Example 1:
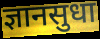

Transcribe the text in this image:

ज्ञानसुधा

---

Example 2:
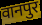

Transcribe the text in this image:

वानपुर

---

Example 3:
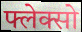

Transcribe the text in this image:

फ्लेक्सो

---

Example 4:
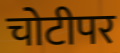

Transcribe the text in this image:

चोटीपर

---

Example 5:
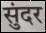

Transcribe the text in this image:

सुंदर